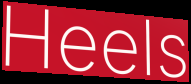
Heels